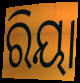
ରିୟା